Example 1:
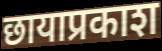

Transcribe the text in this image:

छायाप्रकाश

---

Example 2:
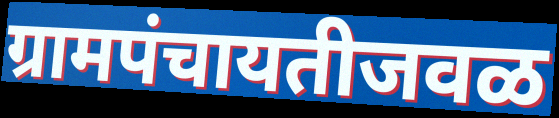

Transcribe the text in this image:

ग्रामपंचायतीजवळ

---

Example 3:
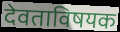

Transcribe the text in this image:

देवताविषयक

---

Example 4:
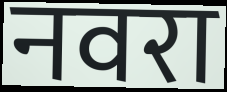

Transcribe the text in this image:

नवरा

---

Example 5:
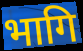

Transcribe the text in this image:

भागि